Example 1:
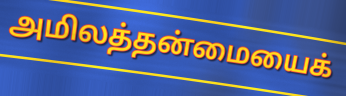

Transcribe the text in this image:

அமிலத்தன்மையைக்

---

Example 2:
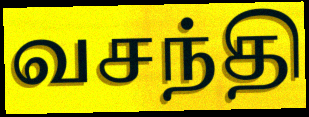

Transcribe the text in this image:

வசந்தி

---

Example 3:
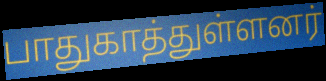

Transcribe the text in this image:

பாதுகாத்துள்ளனர்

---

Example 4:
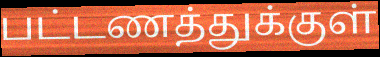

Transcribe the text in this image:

பட்டணத்துக்குள்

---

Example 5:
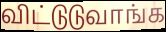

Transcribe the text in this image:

விட்டுடுவாங்க